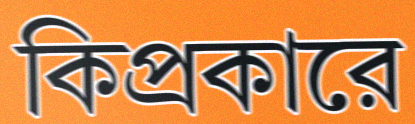
কিপ্রকারে